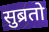
सुब्रतो